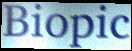
Biopic